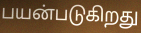
பயன்படுகிறது